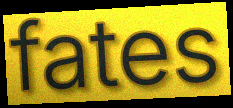
fates